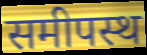
समीपस्थ